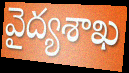
వైద్యశాఖ